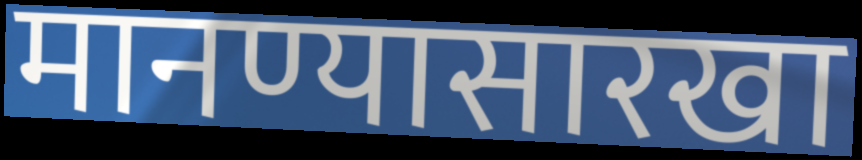
मानण्यासारखा